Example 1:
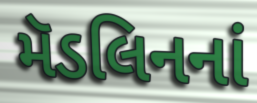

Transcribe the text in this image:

મૅડલિનનાં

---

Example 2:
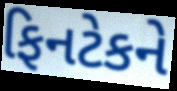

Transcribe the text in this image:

ફિનટેકને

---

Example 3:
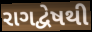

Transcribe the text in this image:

રાગદ્વેષથી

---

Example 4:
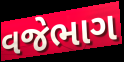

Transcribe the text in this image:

વજેભાગ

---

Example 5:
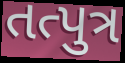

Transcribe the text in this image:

તત્પુત્ર